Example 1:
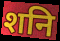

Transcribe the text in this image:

शनि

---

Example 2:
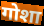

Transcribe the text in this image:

गोशा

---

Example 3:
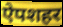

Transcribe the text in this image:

ऐपशहर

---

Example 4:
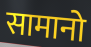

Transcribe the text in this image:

सामानो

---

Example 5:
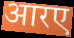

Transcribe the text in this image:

आरए